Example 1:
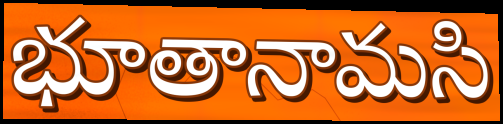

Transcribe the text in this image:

భూతానామసి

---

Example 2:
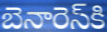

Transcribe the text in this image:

బెనారెస్‌కి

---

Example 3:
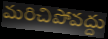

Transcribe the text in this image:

మరిచిపోవద్దు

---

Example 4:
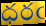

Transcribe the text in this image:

ధరఁ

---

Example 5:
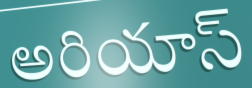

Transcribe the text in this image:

అరియాస్